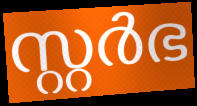
സ്റ്റർഭ